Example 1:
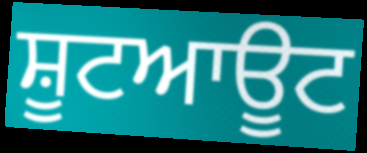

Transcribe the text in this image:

ਸ਼ੂਟਆਊਟ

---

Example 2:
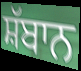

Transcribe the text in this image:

ਸ਼ੱਬਾਨ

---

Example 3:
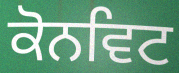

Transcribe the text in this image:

ਕੋਨਵਿਟ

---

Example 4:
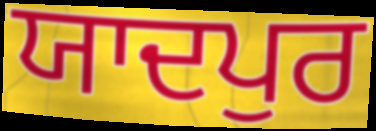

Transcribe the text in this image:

ਯਾਦਪੁਰ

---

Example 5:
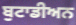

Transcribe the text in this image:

ਬੁਟਾਡੀਅਨ